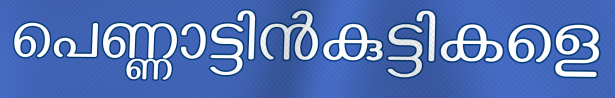
പെണ്ണാട്ടിൻകുട്ടികളെ